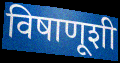
विषाणूशी